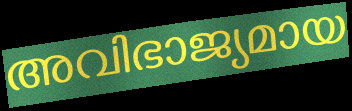
അവിഭാജ്യമായ